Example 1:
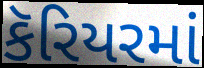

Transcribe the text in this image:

કૅરિયરમાં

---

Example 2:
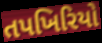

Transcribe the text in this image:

તપખિરિયો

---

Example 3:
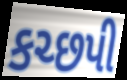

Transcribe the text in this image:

કચ્છપી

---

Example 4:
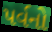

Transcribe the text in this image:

પર્વનો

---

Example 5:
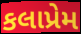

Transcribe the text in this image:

કલાપ્રેમ